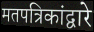
मतपत्रिकांद्वारे